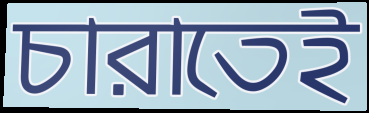
চারাতেই